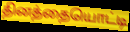
தினத்தையொட்டி